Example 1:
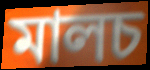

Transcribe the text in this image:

মালচ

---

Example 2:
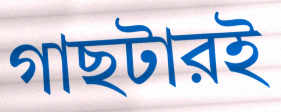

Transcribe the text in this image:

গাছটারই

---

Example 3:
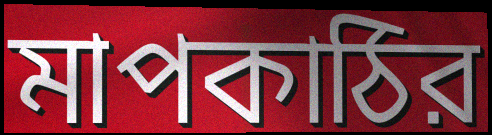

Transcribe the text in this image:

মাপকাঠির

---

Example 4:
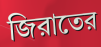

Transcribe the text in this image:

জিরাতের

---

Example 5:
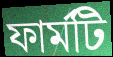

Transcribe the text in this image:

ফার্মটি